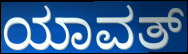
ಯಾವತ್